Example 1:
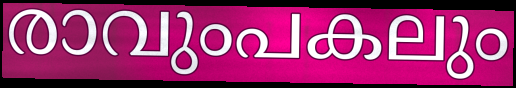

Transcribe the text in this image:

രാവുംപകലും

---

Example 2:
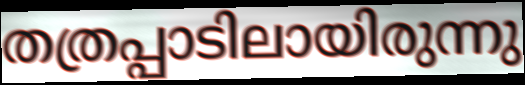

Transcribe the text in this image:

തത്രപ്പാടിലായിരുന്നു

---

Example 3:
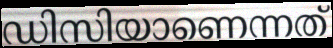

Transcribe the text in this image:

ഡിസിയാണെന്നത്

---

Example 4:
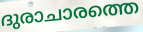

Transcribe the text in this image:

ദുരാചാരത്തെ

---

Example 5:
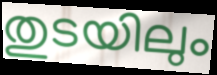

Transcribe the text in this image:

തുടയിലും